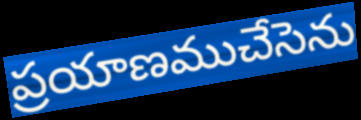
ప్రయాణముచేసెను